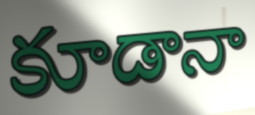
కూడానా